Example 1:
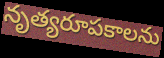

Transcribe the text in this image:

నృత్యరూపకాలను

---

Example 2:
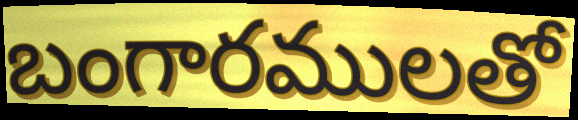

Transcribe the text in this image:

బంగారములతో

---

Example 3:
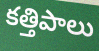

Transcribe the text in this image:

కత్తిపాలు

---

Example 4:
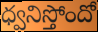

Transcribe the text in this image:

ధ్వనిస్తోందో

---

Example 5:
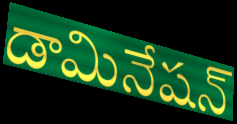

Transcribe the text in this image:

డామినేషన్